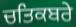
ਚਤਿਕਬਰੇ